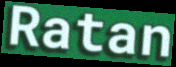
Ratan